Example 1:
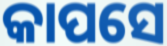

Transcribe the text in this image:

କାପସେ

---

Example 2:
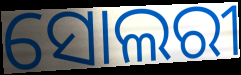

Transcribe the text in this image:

ସୋଲରୀ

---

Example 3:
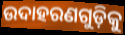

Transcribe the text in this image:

ଉଦାହରଣଗୁଡ଼ିକୁ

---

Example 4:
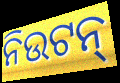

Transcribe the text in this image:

ନିଉଟନ୍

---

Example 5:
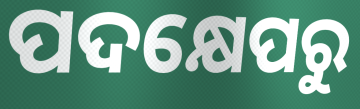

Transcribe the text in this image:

ପଦକ୍ଷେପରୁ